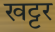
खट्टर